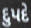
દુપદે